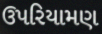
ઉપરિયામણ